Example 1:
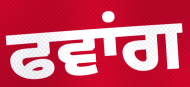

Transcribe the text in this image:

ਫਵਾਂਗ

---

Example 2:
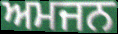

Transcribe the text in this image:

ਅਮਜਨ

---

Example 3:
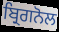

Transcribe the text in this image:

ਬ੍ਰਿਗਨੋਲ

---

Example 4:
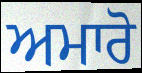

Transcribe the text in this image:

ਅਮਾਰੋ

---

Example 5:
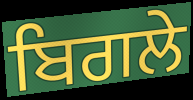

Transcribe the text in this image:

ਬਿਗਲੇ